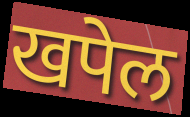
खपेल